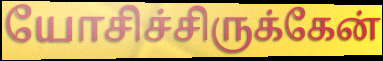
யோசிச்சிருக்கேன்